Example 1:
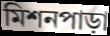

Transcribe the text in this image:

মিশনপাড়া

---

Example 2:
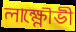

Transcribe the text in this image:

লাক্ষ্ণৌভী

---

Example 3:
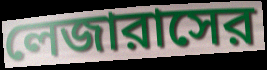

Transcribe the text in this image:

লেজারাসের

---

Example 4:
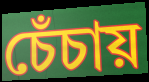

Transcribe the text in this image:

চেঁচায়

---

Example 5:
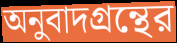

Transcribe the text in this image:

অনুবাদগ্রন্থের